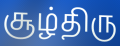
சூழ்திரு